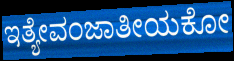
ಇತ್ಯೇವಂಜಾತೀಯಕೋ